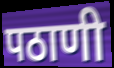
पठाणी